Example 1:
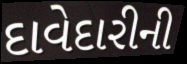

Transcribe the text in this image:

દાવેદારીની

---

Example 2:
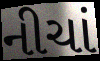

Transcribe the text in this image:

નીચાં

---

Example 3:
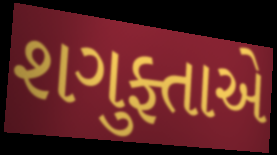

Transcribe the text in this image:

શગુફ્તાએ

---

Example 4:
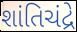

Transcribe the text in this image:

શાંતિચંદ્રે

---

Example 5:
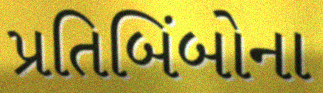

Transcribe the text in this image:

પ્રતિબિંબોના